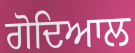
ਗੋਦਿਆਲ